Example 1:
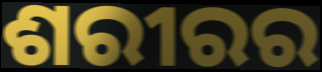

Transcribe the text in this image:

ଶରୀରର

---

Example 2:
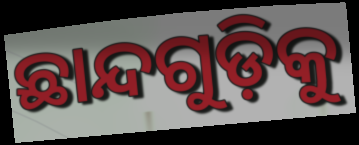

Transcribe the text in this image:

ଛାନ୍ଦଗୁଡ଼ିକୁ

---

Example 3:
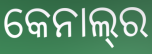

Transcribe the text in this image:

କେନାଲ୍‍ର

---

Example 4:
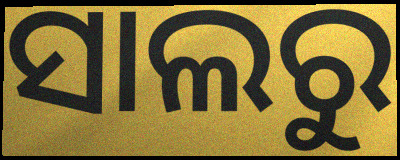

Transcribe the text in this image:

ସାଲରୁ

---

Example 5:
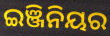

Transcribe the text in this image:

ଇଞ୍ଜିନିୟର